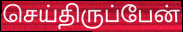
செய்திருப்பேன்